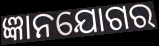
ଜ୍ଞାନଯୋଗର